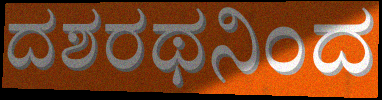
ದಶರಥನಿಂದ